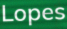
Lopes